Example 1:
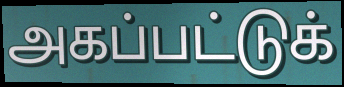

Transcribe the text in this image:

அகப்பட்டுக்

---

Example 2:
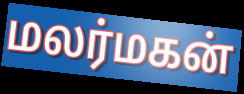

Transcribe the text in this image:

மலர்மகன்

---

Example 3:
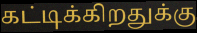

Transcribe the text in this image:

கட்டிக்கிறதுக்கு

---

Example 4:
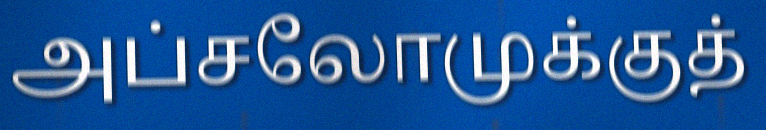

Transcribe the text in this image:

அப்சலோமுக்குத்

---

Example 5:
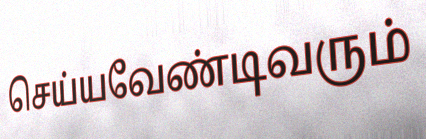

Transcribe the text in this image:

செய்யவேண்டிவரும்